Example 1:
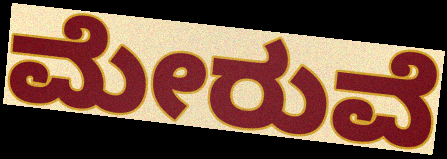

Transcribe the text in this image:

ಮೇರುವೆ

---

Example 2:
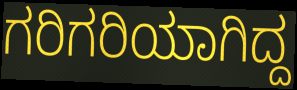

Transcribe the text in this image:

ಗರಿಗರಿಯಾಗಿದ್ದ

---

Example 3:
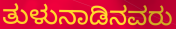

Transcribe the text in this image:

ತುಳುನಾಡಿನವರು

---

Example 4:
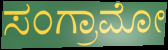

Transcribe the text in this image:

ಸಂಗ್ರಾಮೋ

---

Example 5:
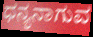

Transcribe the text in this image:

ಧನ್ಯನಾಗುವ